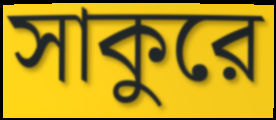
সাকুরে